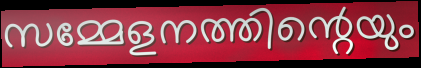
സമ്മേളനത്തിന്റെയും